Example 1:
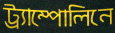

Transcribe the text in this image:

ট্র্যাম্পোলিনে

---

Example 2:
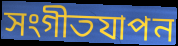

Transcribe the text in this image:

সংগীতযাপন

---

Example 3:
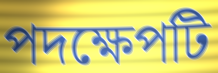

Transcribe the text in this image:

পদক্ষেপটি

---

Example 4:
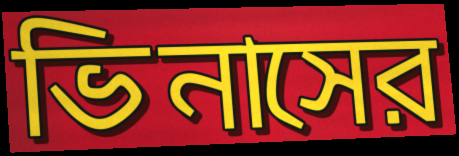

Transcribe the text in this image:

ভিনাসের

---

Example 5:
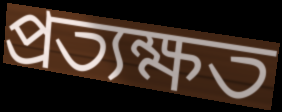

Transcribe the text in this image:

প্রত্যক্ষত